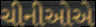
ચીનીઓએ